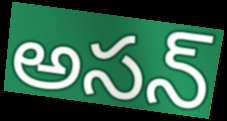
అసన్